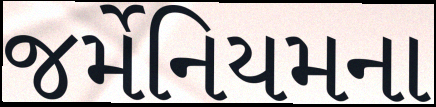
જર્મેનિયમના